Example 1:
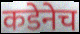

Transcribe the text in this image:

कडेनेच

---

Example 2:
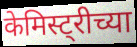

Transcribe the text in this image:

केमिस्ट्रीच्या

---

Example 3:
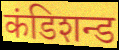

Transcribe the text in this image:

कंडिशन्ड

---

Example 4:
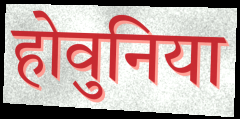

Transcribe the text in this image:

होवुनिया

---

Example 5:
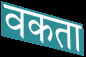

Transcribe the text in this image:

वकता